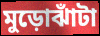
মুড়োঝাঁটা